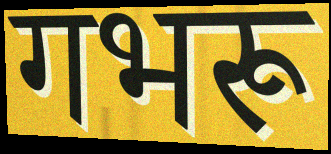
गभरू